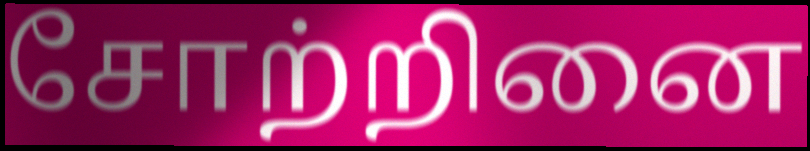
சோற்றினை